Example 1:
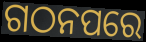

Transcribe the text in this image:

ଗଠନପରେ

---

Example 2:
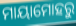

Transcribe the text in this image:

ମାୟାମୋହରୁ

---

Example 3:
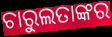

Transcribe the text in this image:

ଚାରୁଲତାଙ୍କର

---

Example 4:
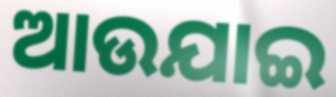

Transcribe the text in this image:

ଆଉଯାଇ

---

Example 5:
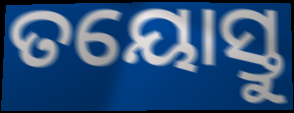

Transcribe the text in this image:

ତୟୋସ୍ତୁ